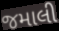
જમાલી